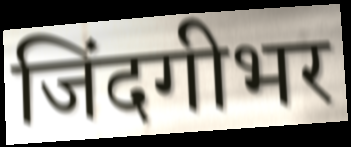
जिंदगीभर